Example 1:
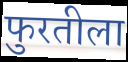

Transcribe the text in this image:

फुरतीला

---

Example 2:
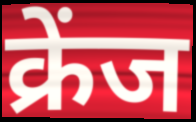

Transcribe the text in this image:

क्रेंज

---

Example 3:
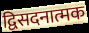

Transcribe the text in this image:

द्विसदनात्मक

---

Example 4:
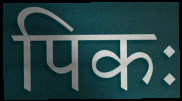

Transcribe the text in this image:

पिकः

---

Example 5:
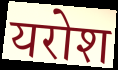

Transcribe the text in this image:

यरोश